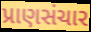
પ્રાણસંચાર